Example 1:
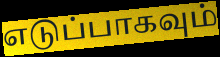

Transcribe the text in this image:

எடுப்பாகவும்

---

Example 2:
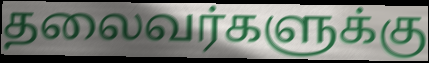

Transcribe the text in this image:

தலைவர்களுக்கு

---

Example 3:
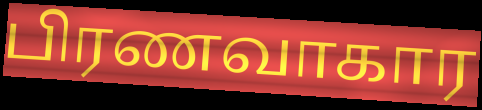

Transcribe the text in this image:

பிரணவாகார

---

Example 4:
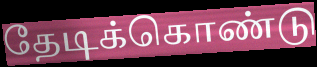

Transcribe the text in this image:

தேடிக்கொண்டு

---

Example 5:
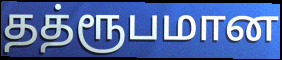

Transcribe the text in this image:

தத்ரூபமான